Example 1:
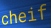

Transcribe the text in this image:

cheif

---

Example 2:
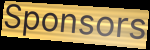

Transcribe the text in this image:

Sponsors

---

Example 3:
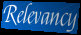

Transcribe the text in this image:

Relevancy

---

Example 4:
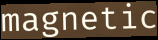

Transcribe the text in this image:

magnetic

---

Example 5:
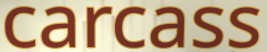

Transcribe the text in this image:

carcass